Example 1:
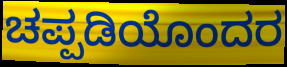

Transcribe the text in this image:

ಚಪ್ಪಡಿಯೊಂದರ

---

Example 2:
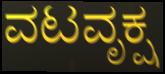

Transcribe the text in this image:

ವಟವೃಕ್ಷ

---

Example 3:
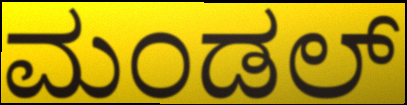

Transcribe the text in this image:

ಮಂಡಲ್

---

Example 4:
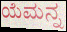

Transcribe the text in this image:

ಯೆಮನ್ನ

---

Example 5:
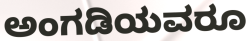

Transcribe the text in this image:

ಅಂಗಡಿಯವರೂ